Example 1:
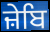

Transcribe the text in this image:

ਜ਼ੇਬਿ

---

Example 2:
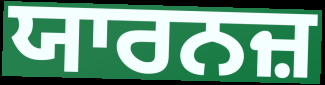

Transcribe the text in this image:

ਯਾਰਨਜ਼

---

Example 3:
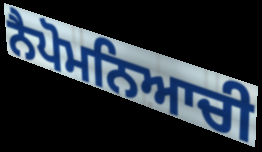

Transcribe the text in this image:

ਨੈਪੋਮਨਿਆਚੀ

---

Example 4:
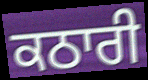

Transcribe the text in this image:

ਕਠਾਰੀ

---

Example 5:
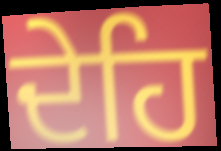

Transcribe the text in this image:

ਦੇਹਿ